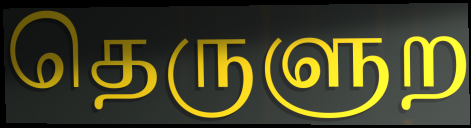
தெருளுற